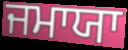
ਜਮਾਯਾ